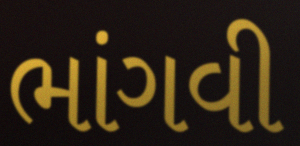
ભાંગવી